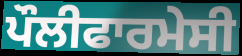
ਪੌਲੀਫਾਰਮੇਸੀ